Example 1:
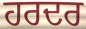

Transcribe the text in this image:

ਹਰਦਰ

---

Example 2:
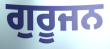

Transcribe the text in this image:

ਗੁਰੂਜਨ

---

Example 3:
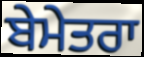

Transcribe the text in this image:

ਬੇਮੇਤਰਾ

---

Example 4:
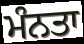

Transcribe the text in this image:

ਮੰਨਤਾ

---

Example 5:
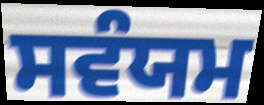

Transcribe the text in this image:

ਸਵੰਯਮ